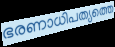
ഭരണാധിപത്യത്തെ